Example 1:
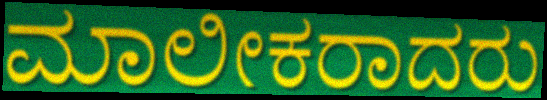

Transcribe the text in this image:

ಮಾಲೀಕರಾದರು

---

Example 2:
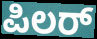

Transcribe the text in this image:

ಪಿಲರ್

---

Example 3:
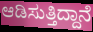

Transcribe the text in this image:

ಆಡಿಸುತ್ತಿದ್ದಾನೆ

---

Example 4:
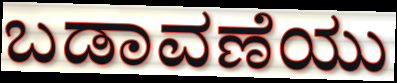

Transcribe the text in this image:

ಬಡಾವಣೆಯು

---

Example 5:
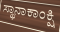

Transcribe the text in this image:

ಸ್ಥಾನಾಕಾಂಕ್ಷಿ